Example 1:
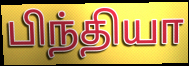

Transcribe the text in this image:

பிந்தியா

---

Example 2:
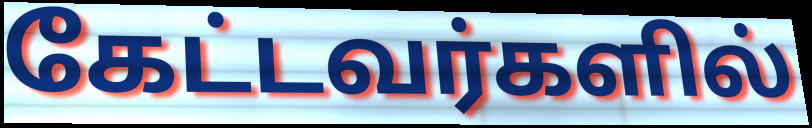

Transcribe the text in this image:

கேட்டவர்களில்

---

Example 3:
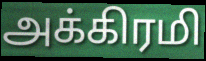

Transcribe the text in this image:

அக்கிரமி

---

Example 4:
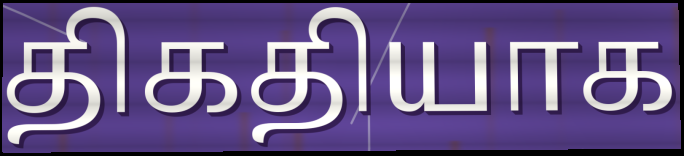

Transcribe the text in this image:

திகதியாக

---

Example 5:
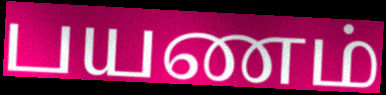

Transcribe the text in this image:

பயணம்